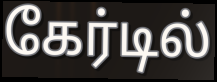
கேர்டில்